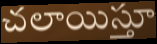
చలాయిస్తూ